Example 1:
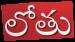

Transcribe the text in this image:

లోతు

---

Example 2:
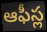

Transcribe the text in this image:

ఆఫీస్ల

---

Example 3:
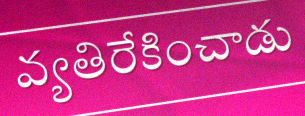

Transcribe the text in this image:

వ్యతిరేకించాడు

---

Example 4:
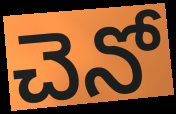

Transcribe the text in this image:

చెనో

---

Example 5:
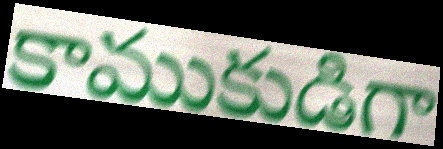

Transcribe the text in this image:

కాముకుడిగా